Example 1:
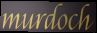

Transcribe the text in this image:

murdoch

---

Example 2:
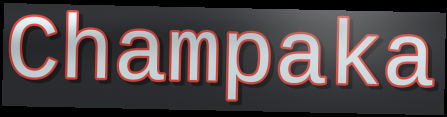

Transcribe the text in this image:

Champaka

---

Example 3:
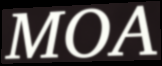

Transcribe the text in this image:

MOA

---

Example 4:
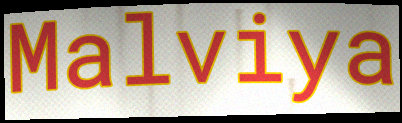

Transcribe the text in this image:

Malviya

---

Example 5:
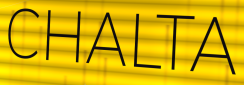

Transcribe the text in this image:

CHALTA